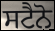
ਸਟੈਨੋ